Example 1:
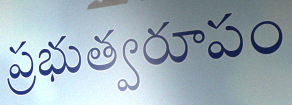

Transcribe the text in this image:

ప్రభుత్వరూపం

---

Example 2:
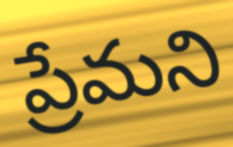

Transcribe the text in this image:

ప్రేమని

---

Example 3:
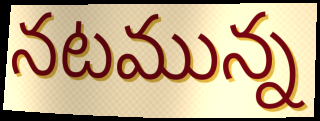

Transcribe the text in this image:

నటమున్న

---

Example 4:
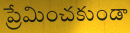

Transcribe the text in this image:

ప్రేమించకుండా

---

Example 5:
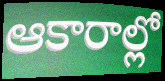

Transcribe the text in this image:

ఆకారాల్లో